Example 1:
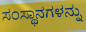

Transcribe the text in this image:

ಸಂಸ್ಥಾನಗಳನ್ನು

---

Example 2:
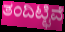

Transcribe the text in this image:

ತಂದಿಟ್ಟಿವೆ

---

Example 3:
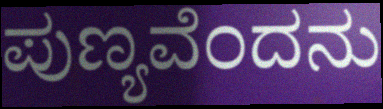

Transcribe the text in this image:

ಪುಣ್ಯವೆಂದನು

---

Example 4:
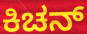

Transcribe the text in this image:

ಕಿಚನ್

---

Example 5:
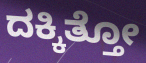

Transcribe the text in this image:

ದಕ್ಕಿತ್ತೋ